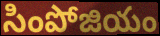
సింపోజియం